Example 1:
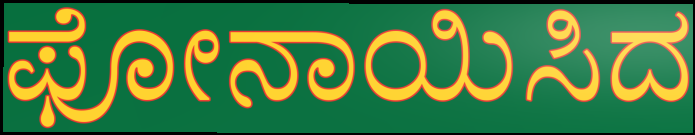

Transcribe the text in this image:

ಫೋನಾಯಿಸಿದ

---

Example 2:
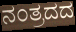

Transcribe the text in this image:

ನಂತ್ರದದ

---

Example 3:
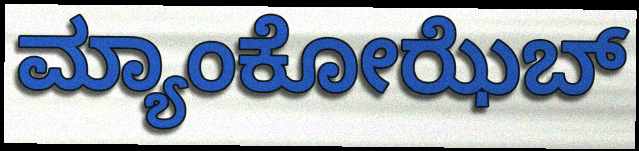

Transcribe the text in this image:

ಮ್ಯಾಂಕೋಝೆಬ್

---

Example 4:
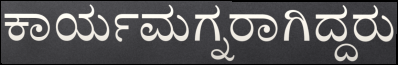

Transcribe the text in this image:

ಕಾರ್ಯಮಗ್ನರಾಗಿದ್ದರು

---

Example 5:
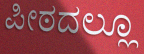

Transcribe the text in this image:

ಪೀಠದಲ್ಲೂ